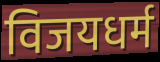
विजयधर्म